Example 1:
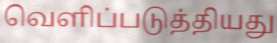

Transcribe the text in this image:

வெளிப்படுத்தியது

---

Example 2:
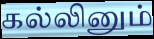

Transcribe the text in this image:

கல்லினும்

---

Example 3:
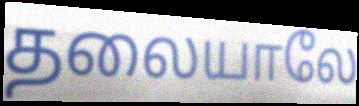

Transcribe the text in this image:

தலையாலே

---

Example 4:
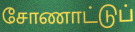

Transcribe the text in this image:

சோணாட்டுப்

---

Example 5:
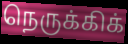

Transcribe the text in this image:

நெருக்கிக்